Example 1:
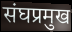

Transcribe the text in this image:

संघप्रमुख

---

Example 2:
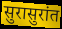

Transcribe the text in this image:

सुरासुरांत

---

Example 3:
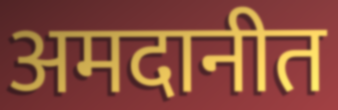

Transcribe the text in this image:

अमदानीत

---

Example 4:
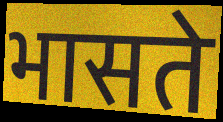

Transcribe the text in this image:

भासते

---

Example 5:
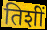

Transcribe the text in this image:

तिशीं